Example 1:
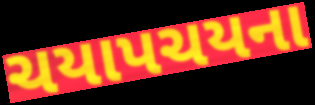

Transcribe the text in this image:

ચયાપચયના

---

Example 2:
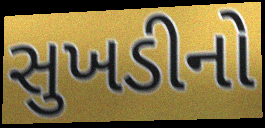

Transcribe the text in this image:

સુખડીનો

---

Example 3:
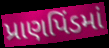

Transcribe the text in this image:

પ્રાણપિંડમાં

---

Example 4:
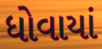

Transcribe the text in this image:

ધોવાયાં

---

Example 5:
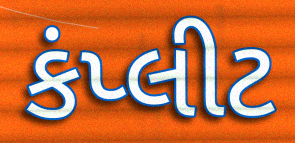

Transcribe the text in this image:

કંપ્લીટ